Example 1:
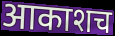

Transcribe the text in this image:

आकाशच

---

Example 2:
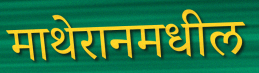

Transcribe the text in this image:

माथेरानमधील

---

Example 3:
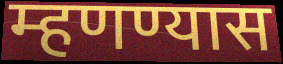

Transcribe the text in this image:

म्हणण्यास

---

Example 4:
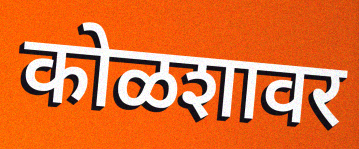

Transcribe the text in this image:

कोळशावर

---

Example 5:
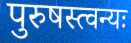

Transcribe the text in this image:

पुरुषस्त्वन्यः